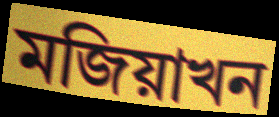
মজিয়াখন